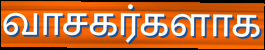
வாசகர்களாக